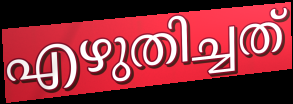
എഴുതിച്ചത്